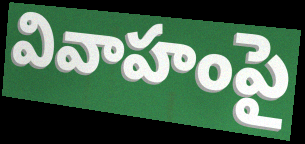
వివాహంపై